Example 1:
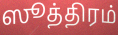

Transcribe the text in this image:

ஸூத்திரம்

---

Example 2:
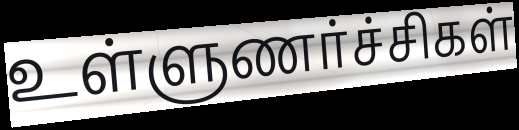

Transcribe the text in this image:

உள்ளுணர்ச்சிகள்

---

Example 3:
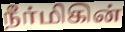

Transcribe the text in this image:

நீர்மிகின்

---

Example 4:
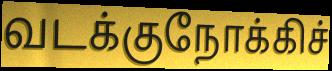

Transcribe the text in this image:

வடக்குநோக்கிச்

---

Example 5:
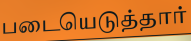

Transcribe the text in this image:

படையெடுத்தார்